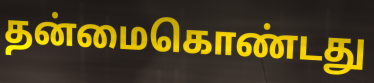
தன்மைகொண்டது